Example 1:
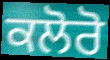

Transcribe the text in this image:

ਕਲੋਰੋ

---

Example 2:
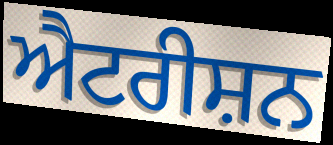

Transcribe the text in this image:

ਐਟਰੀਸ਼ਨ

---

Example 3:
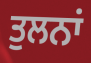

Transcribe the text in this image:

ਤੁਲਨਾਂ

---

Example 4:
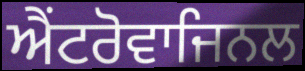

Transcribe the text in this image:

ਐਂਟਰੋਵਾਜਿਨਲ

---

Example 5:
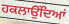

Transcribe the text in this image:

ਹਕਲਾਉਂਦਿਆਂ